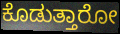
ಕೊಡುತ್ತಾರೋ